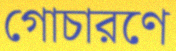
গোচারণে